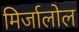
मिर्जालोल